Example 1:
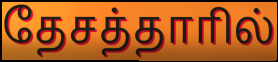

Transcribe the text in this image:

தேசத்தாரில்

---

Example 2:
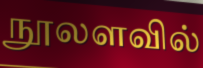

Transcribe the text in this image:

நூலளவில்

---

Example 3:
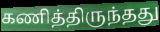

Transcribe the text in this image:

கணித்திருந்தது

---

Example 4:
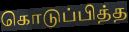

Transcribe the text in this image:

கொடுப்பித்த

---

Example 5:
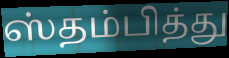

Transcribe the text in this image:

ஸ்தம்பித்து